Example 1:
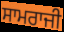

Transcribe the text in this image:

ਸਾਮਰਾਜੀ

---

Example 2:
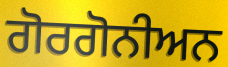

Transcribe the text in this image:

ਗੋਰਗੋਨੀਅਨ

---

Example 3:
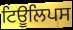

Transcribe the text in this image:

ਟਿਊਲਿਪਸ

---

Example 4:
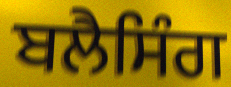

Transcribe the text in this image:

ਬਲੈਸਿੰਗ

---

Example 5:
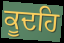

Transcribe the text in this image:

ਕੂਦਹਿ